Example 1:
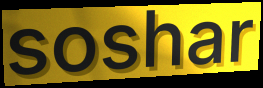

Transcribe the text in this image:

soshar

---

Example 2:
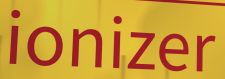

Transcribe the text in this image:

ionizer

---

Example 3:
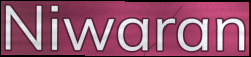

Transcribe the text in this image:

Niwaran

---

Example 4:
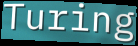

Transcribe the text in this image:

Turing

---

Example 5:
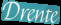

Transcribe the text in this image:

Drente